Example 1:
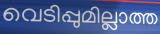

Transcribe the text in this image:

വെടിപ്പുമില്ലാത്ത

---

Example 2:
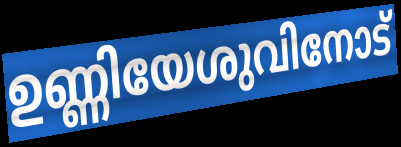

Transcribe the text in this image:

ഉണ്ണിയേശുവിനോട്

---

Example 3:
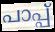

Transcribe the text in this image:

പാപ്പ്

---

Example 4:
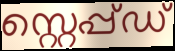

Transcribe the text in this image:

സ്റ്റെപ്പ്ഡ്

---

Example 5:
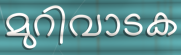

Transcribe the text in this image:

മുറിവാടക